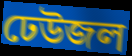
ঢেউজল